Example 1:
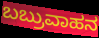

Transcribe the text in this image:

ಬಬ್ರುವಾಹನ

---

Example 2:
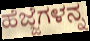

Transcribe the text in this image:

ಹೆಜ್ಜೆಗಳನ್ನ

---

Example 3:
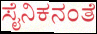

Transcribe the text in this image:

ಸೈನಿಕನಂತೆ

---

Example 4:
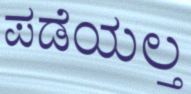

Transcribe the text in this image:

ಪಡೆಯಲ್ತ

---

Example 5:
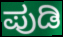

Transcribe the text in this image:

ಪುಡಿ